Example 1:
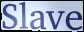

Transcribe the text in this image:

Slave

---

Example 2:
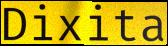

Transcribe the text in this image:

Dixita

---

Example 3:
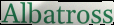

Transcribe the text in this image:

Albatross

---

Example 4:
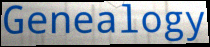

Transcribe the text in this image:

Genealogy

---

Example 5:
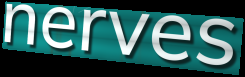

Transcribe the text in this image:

nerves